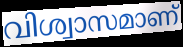
വിശ്വാസമാണ്